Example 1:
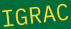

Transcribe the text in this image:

IGRAC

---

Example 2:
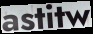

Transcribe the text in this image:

astitw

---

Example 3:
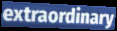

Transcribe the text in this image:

extraordinary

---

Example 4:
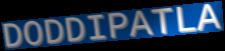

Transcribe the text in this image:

DODDIPATLA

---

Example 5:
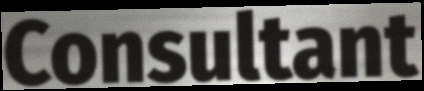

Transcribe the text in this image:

Consultant